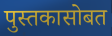
पुस्तकासोबत